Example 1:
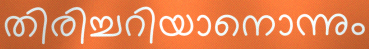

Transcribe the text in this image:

തിരിച്ചറിയാനൊന്നും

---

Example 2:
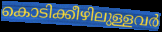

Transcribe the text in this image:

കൊടിക്കീഴിലുള്ളവർ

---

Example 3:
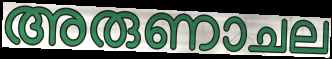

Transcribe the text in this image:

അരുണാചല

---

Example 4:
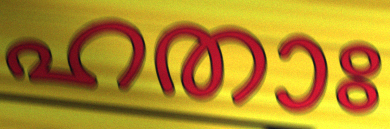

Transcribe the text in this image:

ഹതാഃ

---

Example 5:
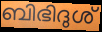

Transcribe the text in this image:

ബിഭിദുശ്